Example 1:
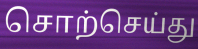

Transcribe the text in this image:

சொற்செய்து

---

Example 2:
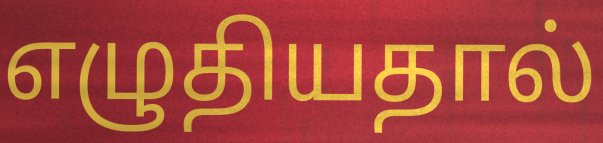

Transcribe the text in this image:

எழுதியதால்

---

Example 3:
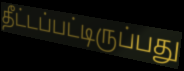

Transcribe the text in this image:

தீட்டப்பட்டிருப்பது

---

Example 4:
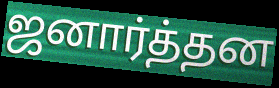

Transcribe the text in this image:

ஜனார்த்தன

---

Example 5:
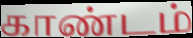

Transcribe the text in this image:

காண்டம்